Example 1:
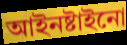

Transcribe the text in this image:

আইনষ্টাইনো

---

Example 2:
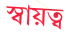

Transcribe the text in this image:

স্বায়ত্ব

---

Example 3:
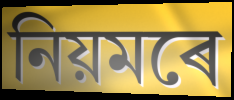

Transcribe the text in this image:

নিয়মৰে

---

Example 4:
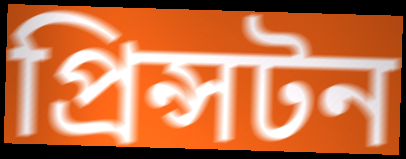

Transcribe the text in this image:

প্ৰিন্সটন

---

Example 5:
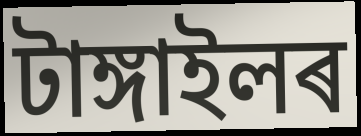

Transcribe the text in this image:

টাঙ্গাইলৰ